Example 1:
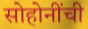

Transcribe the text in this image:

सोहोनींची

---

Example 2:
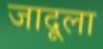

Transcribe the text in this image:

जादूला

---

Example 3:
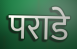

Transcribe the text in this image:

पराडे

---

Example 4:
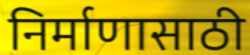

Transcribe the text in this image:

निर्माणासाठी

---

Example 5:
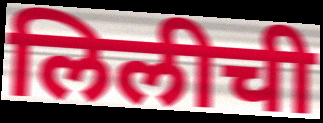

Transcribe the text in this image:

लिलीची